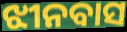
ଝୀନବାସ